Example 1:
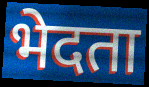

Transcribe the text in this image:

भेदता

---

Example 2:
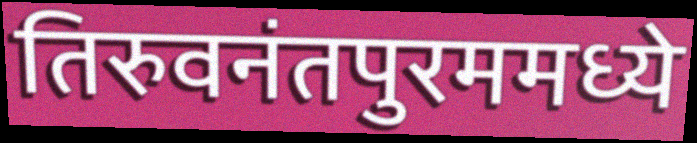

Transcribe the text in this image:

तिरुवनंतपुरममध्ये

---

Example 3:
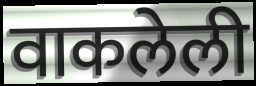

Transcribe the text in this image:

वाकलेली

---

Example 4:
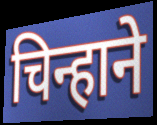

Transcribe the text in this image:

चिन्हाने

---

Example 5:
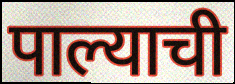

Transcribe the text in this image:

पाल्याची